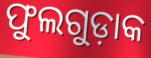
ଫୁଲଗୁଡ଼ାକ